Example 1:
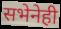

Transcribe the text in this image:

सभेनेही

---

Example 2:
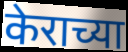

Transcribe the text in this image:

केराच्या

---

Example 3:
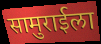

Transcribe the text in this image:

सामुराईला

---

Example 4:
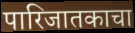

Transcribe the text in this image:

पारिजातकाचा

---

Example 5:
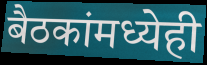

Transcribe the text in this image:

बैठकांमध्येही